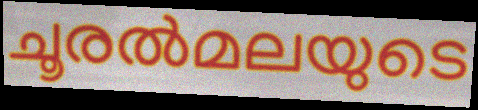
ചൂരൽമലയുടെ